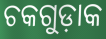
ଚକଗୁଡ଼ାକ